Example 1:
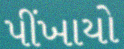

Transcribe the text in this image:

પીંખાયો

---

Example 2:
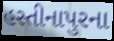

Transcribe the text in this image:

હસ્તીનાપુરના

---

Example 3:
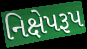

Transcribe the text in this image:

નિક્ષેપરૂપ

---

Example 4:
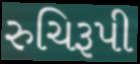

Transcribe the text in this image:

રુચિરૂપી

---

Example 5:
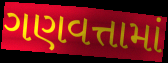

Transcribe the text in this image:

ગણવત્તામાં